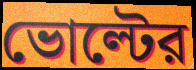
ভোল্টের